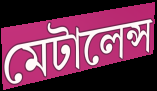
মেটালেন্স